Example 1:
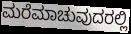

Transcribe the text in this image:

ಮರೆಮಾಚುವುದರಲ್ಲಿ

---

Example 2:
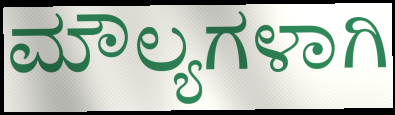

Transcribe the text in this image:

ಮೌಲ್ಯಗಳಾಗಿ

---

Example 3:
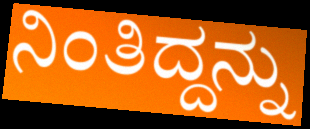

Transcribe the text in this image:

ನಿಂತಿದ್ದನ್ನು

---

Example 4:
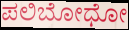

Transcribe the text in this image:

ಪಲಿಬೋಧೋ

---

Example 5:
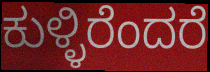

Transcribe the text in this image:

ಕುಳ್ಳಿರೆಂದರೆ